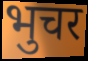
भुचर